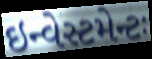
ઇન્વેસ્ટમેન્ટઃ